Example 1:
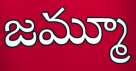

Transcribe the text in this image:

జమ్మూ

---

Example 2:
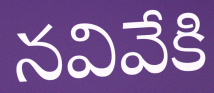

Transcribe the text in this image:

నవివేకి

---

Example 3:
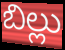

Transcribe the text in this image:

బిల్లు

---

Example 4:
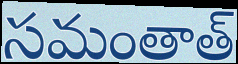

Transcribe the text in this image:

సమంతాత్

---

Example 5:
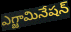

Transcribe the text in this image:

ఎగ్జామినేషన్